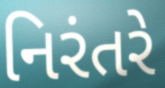
નિરંતરે